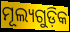
ମୂଲ୍ୟଗୁଡ଼ିକ